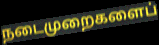
நடைமுறைகளைப்